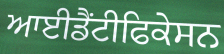
ਆਈਡੈਂਟੀਫਿਕੇਸਨ